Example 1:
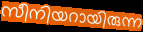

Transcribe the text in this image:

സീനിയറായിരുന്ന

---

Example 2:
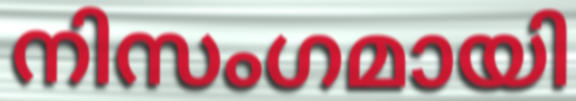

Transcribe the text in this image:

നിസംഗമായി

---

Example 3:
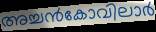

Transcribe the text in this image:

അച്ചൻകോവിലാർ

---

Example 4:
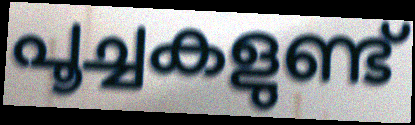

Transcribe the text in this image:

പൂച്ചകളുണ്ട്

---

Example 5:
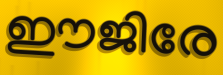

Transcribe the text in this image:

ഈജിരേ